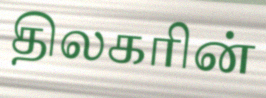
திலகரின்